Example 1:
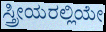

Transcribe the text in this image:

ಸ್ತ್ರೀಯರಲ್ಲಿಯೇ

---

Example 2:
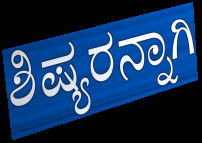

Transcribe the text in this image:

ಶಿಷ್ಯರನ್ನಾಗಿ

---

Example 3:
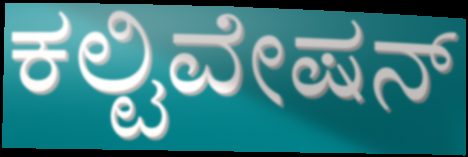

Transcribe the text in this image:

ಕಲ್ಟಿವೇಷನ್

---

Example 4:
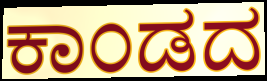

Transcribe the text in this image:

ಕಾಂಡದ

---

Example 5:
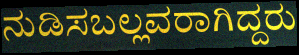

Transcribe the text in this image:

ನುಡಿಸಬಲ್ಲವರಾಗಿದ್ದರು